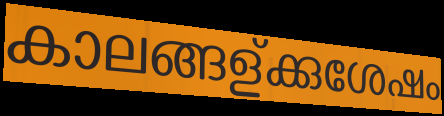
കാലങ്ങള്ക്കുശേഷം